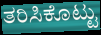
ತರಿಸಿಕೊಟ್ಟು